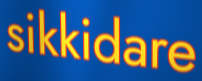
sikkidare